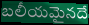
బలీయమైనదే